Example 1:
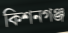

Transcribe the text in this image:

কিশনগঞ্জ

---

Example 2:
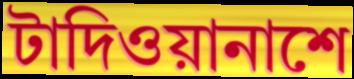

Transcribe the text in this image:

টাদিওয়ানাশে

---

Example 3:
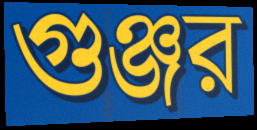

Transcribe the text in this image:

গুঞ্জর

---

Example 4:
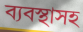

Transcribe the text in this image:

ব্যবস্থাসহ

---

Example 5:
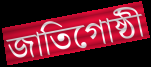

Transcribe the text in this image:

জাতিগোষ্ঠী